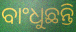
ବାଂଧୁଛନ୍ତି